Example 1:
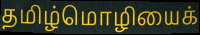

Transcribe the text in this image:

தமிழ்மொழியைக்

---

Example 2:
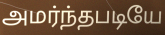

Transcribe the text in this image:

அமர்ந்தபடியே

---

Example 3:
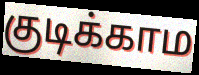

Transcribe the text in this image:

குடிக்காம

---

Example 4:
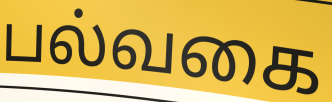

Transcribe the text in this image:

பல்வகை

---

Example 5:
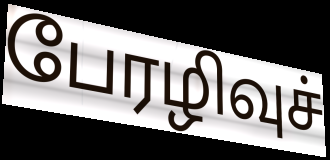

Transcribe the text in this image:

பேரழிவுச்